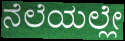
ನೆಲೆಯಲ್ಲೇ